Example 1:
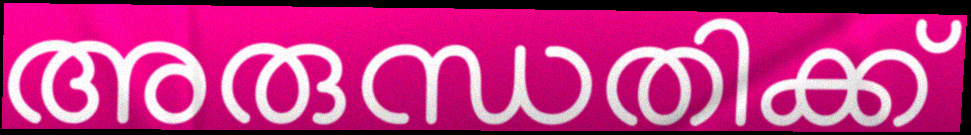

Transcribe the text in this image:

അരുന്ധതിക്ക്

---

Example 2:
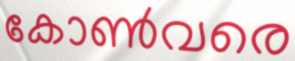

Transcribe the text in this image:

കോൺവരെ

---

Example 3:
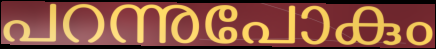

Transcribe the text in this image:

പറന്നുപോകും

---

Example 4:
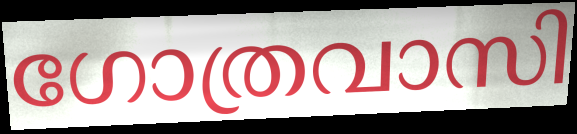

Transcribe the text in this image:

ഗോത്രവാസി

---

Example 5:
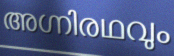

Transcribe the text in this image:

അഗ്നിരഥവും